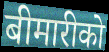
बीमारीको